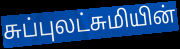
சுப்புலட்சுமியின்